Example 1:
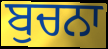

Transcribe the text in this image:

ਬੁਚਨਾ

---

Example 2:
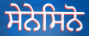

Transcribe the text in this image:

ਸੇਨੇਸਿਨੋ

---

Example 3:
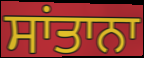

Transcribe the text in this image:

ਸਾਂਤਾਨਾ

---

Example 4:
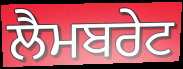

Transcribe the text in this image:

ਲੈਮਬਰੇਟ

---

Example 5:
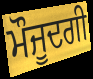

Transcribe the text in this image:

ਮੌਜੂਦਗੀ